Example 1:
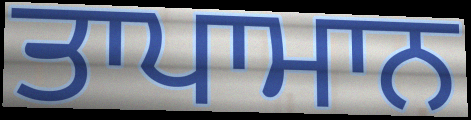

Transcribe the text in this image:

ਤਾਪਾਮਾਨ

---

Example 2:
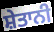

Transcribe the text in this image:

ਸ਼ੇਤਾਨੀ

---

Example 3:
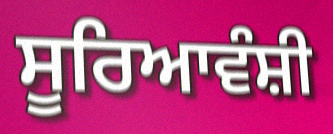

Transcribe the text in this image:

ਸੂਰਿਆਵੰਸ਼ੀ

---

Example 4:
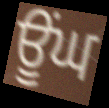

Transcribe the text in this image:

ਊਂਘ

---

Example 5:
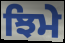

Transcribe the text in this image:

ਝਿਮੇ